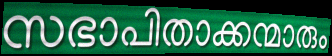
സഭാപിതാക്കന്മാരും